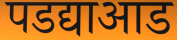
पडद्याआड